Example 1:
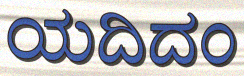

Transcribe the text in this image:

ಯದಿದಂ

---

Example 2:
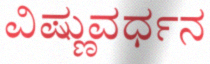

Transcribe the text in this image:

ವಿಷ್ಣುವರ್ಧನ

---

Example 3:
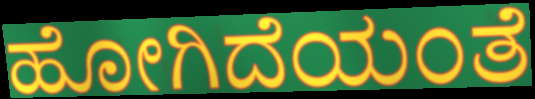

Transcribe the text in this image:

ಹೋಗಿದೆಯಂತೆ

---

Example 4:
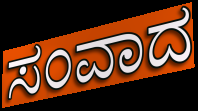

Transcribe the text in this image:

ಸಂವಾದ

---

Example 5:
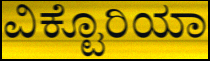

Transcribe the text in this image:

ವಿಕ್ಟೊರಿಯಾ